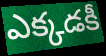
ఎక్కడకీ